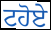
ਟਹੋਏ